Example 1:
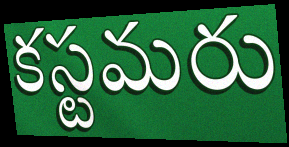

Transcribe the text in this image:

కస్టమరు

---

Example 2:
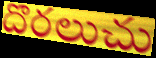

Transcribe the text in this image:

దొరలుచు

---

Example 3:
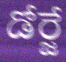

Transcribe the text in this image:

డోర్జే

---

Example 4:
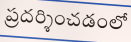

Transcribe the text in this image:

ప్రదర్శించడంలో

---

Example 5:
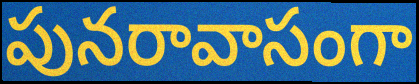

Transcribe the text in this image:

పునరావాసంగా